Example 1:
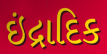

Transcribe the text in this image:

ઇંદ્રાદિક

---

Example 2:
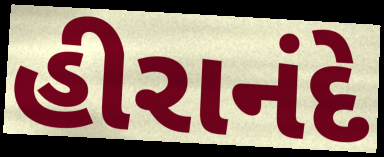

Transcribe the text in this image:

હીરાનંદે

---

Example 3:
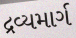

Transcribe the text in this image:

દ્રવ્યમાર્ગ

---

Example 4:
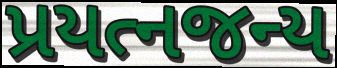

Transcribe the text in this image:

પ્રયત્નજન્ય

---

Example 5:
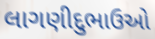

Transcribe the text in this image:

લાગણીદુભાઉઓ